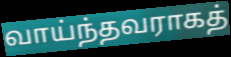
வாய்ந்தவராகத்